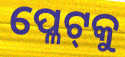
ପ୍ଳେଟ୍‌କୁ